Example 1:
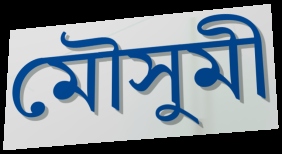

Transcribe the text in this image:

মৌসুমী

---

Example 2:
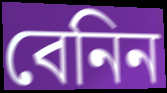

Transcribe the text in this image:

বেনিন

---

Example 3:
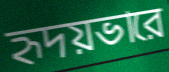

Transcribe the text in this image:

হৃদয়ভারে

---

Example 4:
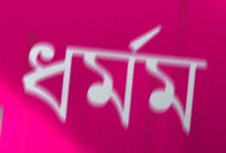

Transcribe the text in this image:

ধর্মম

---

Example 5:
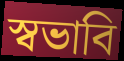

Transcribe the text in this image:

স্বভাবি